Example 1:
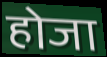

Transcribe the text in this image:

होजा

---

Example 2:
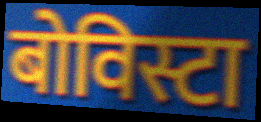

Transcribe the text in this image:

बोविस्टा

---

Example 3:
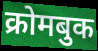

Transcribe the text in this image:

क्रोमबुक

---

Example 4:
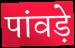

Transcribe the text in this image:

पांवड़े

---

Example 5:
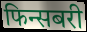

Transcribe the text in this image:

फिन्सबरी